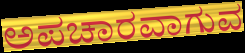
ಅಪಚಾರವಾಗುವ